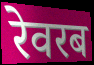
रेवरब